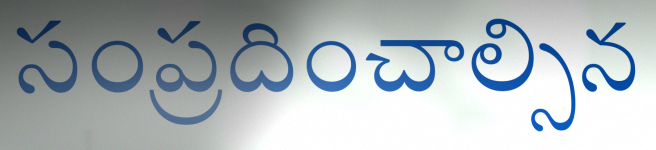
సంప్రదించాల్సిన